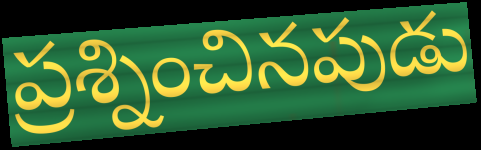
ప్రశ్నించినపుడు